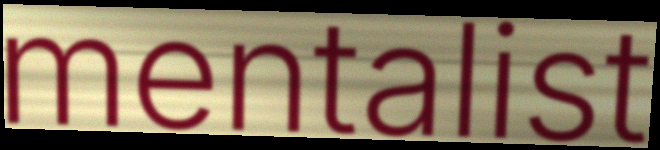
mentalist